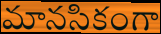
మానసికంగా